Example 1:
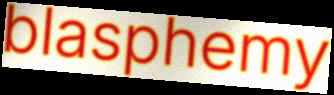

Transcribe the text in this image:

blasphemy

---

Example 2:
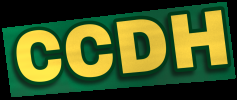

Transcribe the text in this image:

CCDH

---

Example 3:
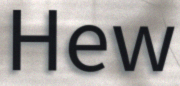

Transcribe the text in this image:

Hew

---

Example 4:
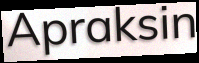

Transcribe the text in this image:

Apraksin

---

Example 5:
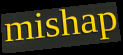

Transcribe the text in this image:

mishap